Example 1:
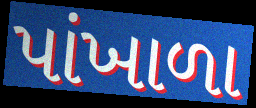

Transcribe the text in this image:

પાંખાળા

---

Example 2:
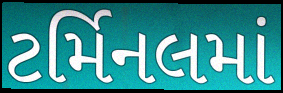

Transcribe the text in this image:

ટર્મિનલમાં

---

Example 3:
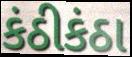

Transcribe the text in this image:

કંઠીકંઠા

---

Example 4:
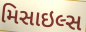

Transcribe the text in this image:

મિસાઇલ્સ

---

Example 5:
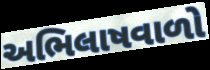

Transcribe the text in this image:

અભિલાષવાળો